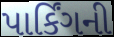
પાર્કિંગની